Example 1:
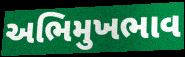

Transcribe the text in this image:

અભિમુખભાવ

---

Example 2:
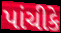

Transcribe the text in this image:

પાંચીકે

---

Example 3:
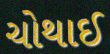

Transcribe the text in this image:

ચોથાઈ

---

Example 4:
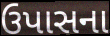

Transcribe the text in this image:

ઉપાસના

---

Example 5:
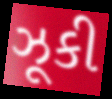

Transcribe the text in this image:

ઝૂકી